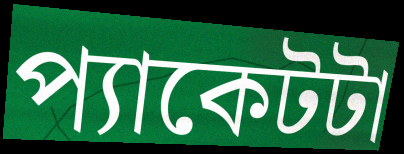
প্যাকেটটা